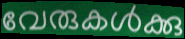
വേരുകൾക്കു